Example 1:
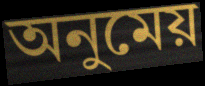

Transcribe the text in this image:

অনুমেয়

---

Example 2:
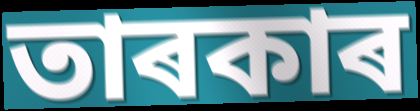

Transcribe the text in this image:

তাৰকাৰ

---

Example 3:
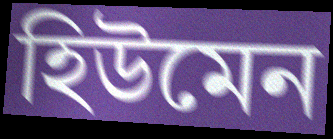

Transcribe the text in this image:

হিউমেন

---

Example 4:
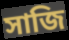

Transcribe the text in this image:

সাজি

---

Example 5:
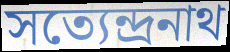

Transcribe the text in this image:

সত্যেন্দ্ৰনাথ